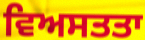
ਵਿਅਸਤਤਾ